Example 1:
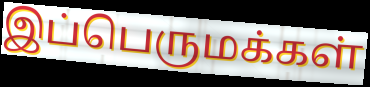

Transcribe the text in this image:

இப்பெருமக்கள்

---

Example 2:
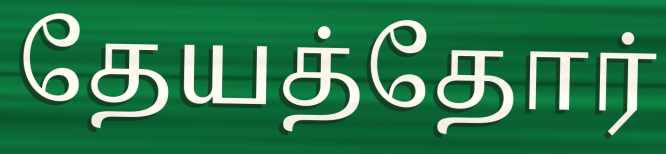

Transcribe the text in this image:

தேயத்தோர்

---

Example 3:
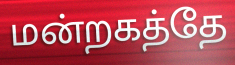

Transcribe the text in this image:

மன்றகத்தே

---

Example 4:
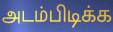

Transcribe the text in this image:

அடம்பிடிக்க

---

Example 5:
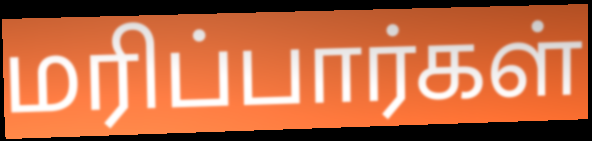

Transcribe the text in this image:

மரிப்பார்கள்